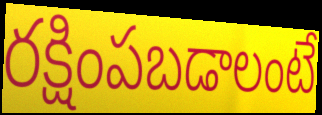
రక్షింపబడాలంటే